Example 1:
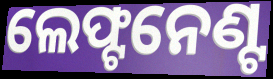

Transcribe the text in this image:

ଲେଫ୍ଟନେଣ୍ଟ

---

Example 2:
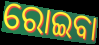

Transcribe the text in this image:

ରୋଇବା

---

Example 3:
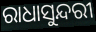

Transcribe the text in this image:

ରାଧାସୁନ୍ଦରୀ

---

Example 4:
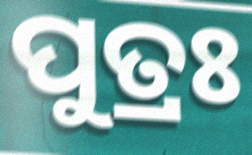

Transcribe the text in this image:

ପୁତ୍ରଃ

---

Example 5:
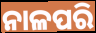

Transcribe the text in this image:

ନାଳପରି